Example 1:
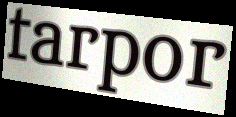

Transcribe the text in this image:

tarpor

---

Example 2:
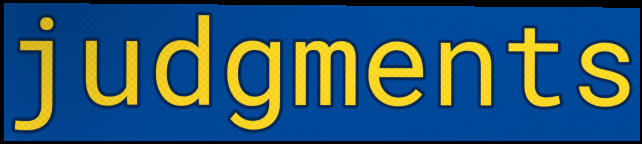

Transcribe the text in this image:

judgments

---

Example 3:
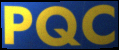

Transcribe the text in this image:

PQC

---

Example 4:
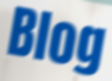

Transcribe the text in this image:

Blog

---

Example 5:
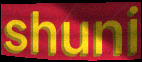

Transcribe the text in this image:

shuni